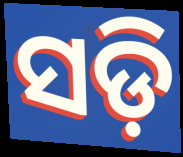
ସଡ଼ି